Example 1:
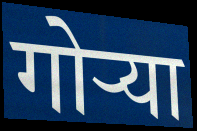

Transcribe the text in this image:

गोऱ्या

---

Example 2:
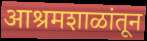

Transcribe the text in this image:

आश्रमशाळांतून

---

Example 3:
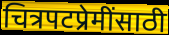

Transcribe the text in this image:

चित्रपटप्रेमींसाठी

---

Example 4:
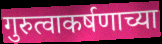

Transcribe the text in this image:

गुरुत्वाकर्षणाच्या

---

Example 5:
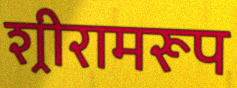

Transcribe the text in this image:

श्रीरामरूप